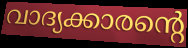
വാദ്യക്കാരന്റെ